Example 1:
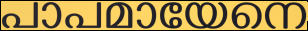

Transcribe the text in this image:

പാപമായേനെ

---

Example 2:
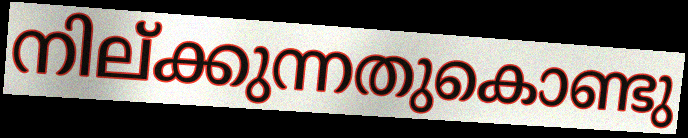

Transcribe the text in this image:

നില്ക്കുന്നതുകൊണ്ടു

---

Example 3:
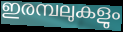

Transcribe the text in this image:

ഇരമ്പലുകളും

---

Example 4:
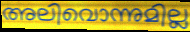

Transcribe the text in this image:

അലിവൊന്നുമില്ല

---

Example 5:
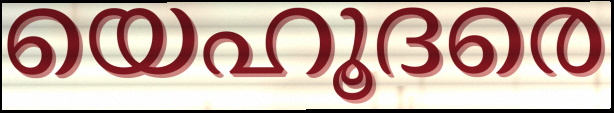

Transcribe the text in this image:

യെഹൂദരെ